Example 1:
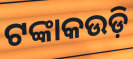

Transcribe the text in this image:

ଟଙ୍କାକଉଡ଼ି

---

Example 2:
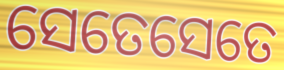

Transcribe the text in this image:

ସେତେସେତେ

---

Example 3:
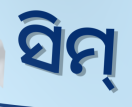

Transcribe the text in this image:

ସିମ୍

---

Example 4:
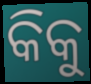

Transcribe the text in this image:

କିକୁ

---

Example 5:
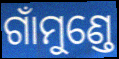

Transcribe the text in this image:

ଗାଁମୁଣ୍ଡେ